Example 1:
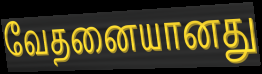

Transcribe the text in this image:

வேதனையானது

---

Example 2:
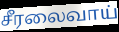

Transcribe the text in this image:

சீரலைவாய்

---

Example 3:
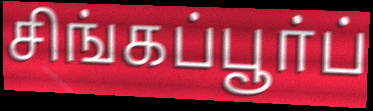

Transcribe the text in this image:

சிங்கப்பூர்ப்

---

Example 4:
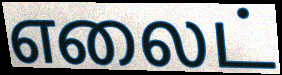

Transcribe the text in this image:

எலைட்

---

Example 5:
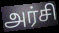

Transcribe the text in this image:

அர்சி